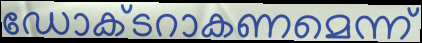
ഡോക്ടറാകണമെന്ന്